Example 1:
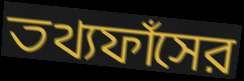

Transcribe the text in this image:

তথ্যফাঁসের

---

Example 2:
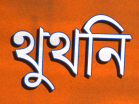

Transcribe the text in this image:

থুথনি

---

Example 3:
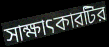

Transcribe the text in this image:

সাক্ষাৎকারটির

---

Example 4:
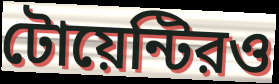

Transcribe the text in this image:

টোয়েন্টিরও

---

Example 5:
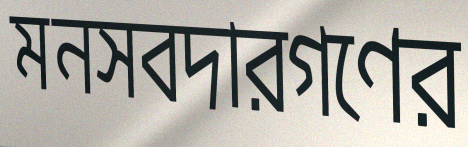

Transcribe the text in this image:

মনসবদারগণের